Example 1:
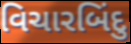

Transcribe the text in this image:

વિચારબિંદુ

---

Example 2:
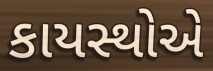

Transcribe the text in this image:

કાયસ્થોએ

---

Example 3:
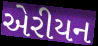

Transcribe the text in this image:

એરીયન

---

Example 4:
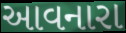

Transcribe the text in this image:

આવનારા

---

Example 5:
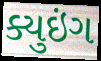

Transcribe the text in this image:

ક્યુઇંગ